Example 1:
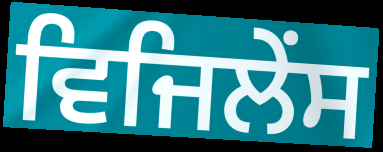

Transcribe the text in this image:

ਵਿਜਿਲੇਂਸ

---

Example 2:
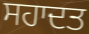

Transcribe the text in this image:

ਸਹਾਦਤ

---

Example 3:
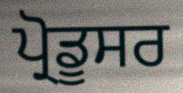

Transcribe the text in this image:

ਪ੍ਰੋਡੂਸਰ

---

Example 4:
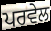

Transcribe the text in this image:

ਪਰਵੇਲ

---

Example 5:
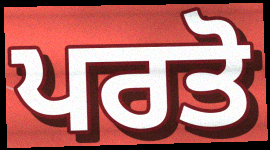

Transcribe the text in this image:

ਪਰਤੋ